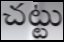
చట్టు